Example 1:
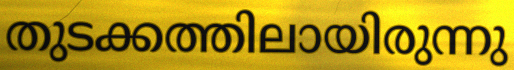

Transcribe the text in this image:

തുടക്കത്തിലായിരുന്നു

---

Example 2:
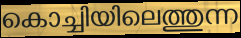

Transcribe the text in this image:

കൊച്ചിയിലെത്തുന്ന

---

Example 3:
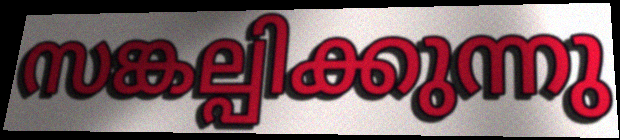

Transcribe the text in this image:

സങ്കല്പിക്കുന്നു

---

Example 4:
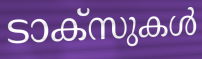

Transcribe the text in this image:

ടാക്സുകൾ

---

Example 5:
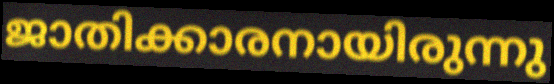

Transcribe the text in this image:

ജാതിക്കാരനായിരുന്നു